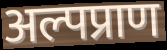
अल्पप्राण